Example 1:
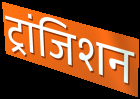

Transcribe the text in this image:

ट्रांजिशन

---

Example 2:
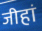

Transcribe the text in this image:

जीहां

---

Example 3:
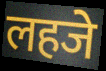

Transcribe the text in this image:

लहजे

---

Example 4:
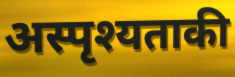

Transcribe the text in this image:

अस्पृश्यताकी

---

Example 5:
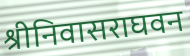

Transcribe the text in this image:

श्रीनिवासराघवन